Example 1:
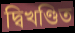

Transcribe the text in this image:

দ্বিখণ্ডিত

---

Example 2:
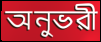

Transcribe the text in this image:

অনুভৱী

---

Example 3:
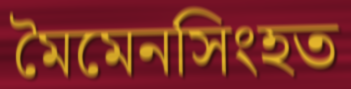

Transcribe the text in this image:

মৈমেনসিংহত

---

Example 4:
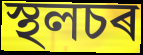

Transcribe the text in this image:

স্থলচৰ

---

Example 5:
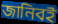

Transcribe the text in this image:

জানিবই